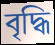
বৃদ্ধি